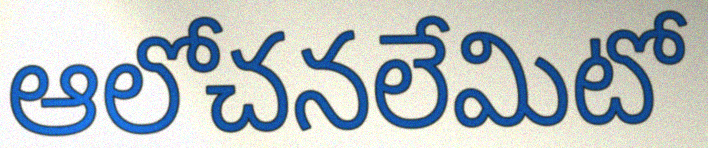
ఆలోచనలేమిటో